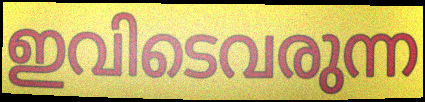
ഇവിടെവരുന്ന